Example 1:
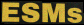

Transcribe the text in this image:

ESMs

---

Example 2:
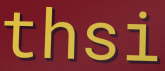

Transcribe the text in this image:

thsi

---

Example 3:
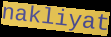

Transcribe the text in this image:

nakliyat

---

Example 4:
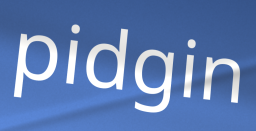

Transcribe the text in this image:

pidgin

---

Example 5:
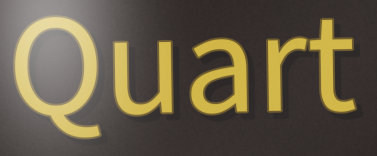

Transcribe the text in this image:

Quart